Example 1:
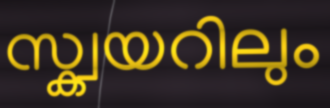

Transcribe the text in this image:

സ്ക്വയറിലും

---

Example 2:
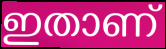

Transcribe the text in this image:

ഇതാണ്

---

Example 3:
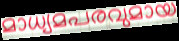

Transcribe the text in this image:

മാധ്യമപരവുമായ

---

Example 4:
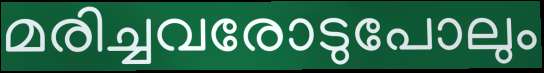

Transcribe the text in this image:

മരിച്ചവരോടുപോലും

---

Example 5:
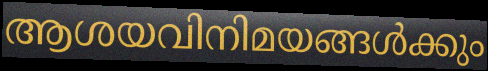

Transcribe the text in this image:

ആശയവിനിമയങ്ങൾക്കും